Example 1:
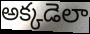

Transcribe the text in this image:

అక్కడెలా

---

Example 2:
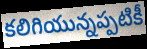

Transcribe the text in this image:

కలిగియున్నప్పటికీ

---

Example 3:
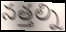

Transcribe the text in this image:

నత్తల్ని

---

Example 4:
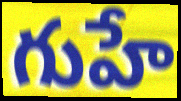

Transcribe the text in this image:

గుహే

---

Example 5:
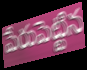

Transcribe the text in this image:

పేరుపెట్టిన